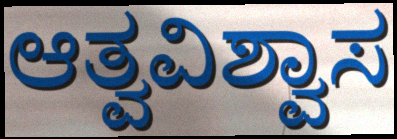
ಆತ್ವವಿಶ್ವಾಸ